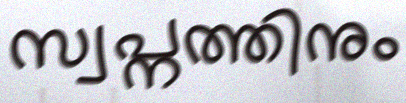
സ്വപ്നത്തിനും